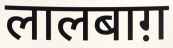
लालबाग़